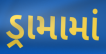
ડ્રામામાં